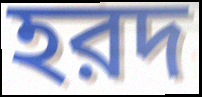
হরদ